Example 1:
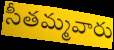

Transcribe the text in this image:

సీతమ్మవారు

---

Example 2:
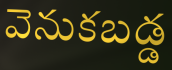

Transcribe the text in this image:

వెనుకబడ్డ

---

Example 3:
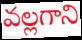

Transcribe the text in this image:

వల్లగాని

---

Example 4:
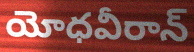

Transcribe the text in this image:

యోధవీరాన్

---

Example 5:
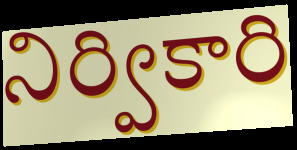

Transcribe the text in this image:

నిర్వికారి